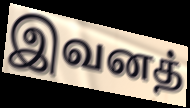
இவனத்